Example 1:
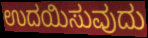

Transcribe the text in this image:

ಉದಯಿಸುವುದು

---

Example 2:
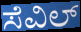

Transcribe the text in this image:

ಸೆವಿಲ್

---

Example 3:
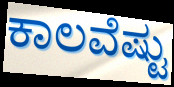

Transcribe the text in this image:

ಕಾಲವೆಷ್ಟು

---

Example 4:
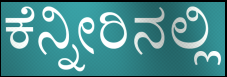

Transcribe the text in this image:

ಕೆನ್ನೀರಿನಲ್ಲಿ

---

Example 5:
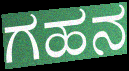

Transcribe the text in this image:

ಗಹನ